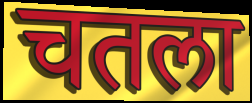
चतला